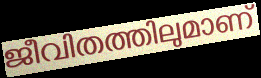
ജീവിതത്തിലുമാണ്